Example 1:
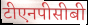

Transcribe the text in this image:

टीएनपीसीबी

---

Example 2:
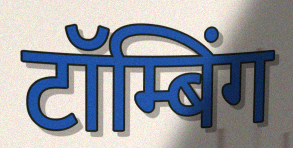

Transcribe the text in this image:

टॉम्बिंग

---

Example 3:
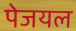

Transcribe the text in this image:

पेजयल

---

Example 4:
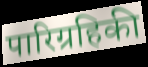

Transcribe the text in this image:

पारिग्रहिकी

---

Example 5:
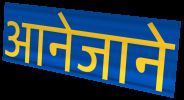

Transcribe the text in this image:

आनेजाने